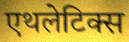
एथलेटिक्स